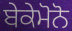
ਬੇਕੇਮੋਨੋ